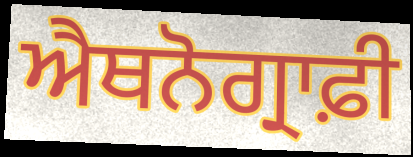
ਐਥਨੋਗ੍ਰਾਫ਼ੀ